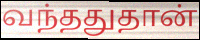
வந்ததுதான்